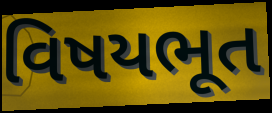
વિષયભૂત